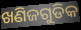
ଖଣିଜଗୁଡିକ